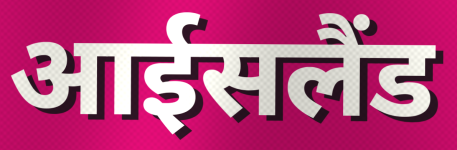
आईसलैंड